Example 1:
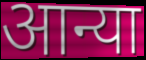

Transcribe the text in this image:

आन्या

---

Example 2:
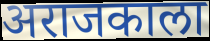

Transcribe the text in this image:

अराजकाला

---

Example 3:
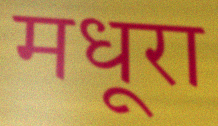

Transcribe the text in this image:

मधूरा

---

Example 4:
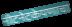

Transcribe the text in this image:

नीटनेटकेपणाचा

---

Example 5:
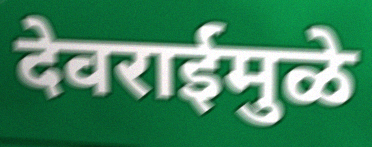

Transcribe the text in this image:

देवराईमुळे